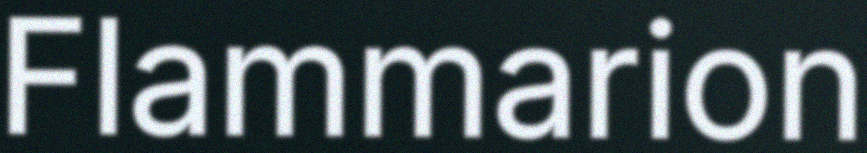
Flammarion